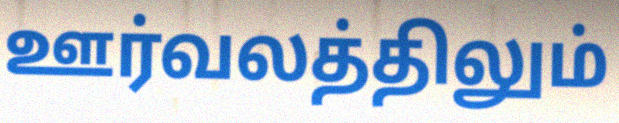
ஊர்வலத்திலும்